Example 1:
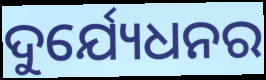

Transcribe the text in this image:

ଦୁର୍ଯ୍ୟେଧନର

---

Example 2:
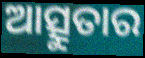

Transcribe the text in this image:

ଆତ୍ସୁତାର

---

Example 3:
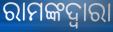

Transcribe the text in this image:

ରାମଙ୍କଦ୍ଵାରା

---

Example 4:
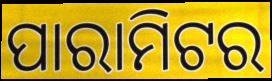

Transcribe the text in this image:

ପାରାମିଟର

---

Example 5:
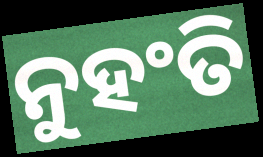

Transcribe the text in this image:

ନୁହଂତି